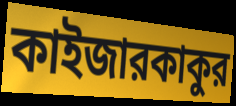
কাইজারকাকুর